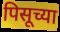
पिसूच्या